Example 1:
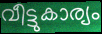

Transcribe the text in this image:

വീട്ടുകാര്യം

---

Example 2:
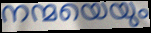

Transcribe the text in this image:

നന്മയെയും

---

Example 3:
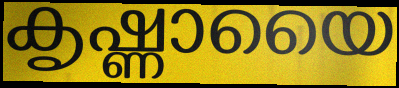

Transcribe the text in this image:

കൃഷ്ണായൈ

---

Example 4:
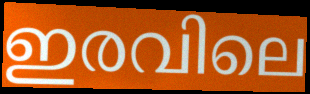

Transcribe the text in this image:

ഇരവിലെ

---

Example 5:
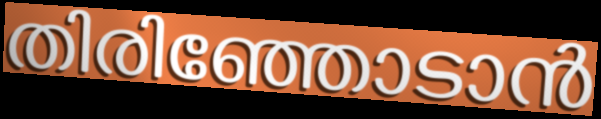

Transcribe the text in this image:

തിരിഞ്ഞോടാൻ